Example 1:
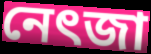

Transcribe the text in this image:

নেৎজা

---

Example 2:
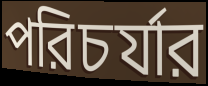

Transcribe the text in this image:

পরিচর্যার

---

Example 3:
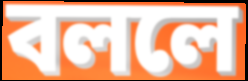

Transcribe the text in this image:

বললে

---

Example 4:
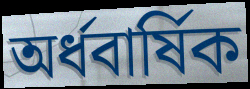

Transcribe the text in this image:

অর্ধবার্ষিক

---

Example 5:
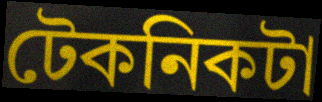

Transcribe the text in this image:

টেকনিকটা